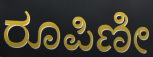
ರೂಪಿಣೀ